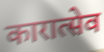
कारात्सेव